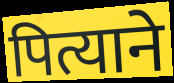
पित्याने